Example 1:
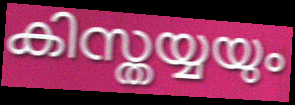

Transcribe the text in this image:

കിസ്തയ്യയും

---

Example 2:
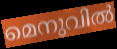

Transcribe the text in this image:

മെനുവിൽ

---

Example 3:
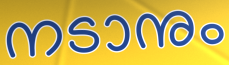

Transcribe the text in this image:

നടാനും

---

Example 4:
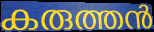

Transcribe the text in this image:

കരുത്തൻ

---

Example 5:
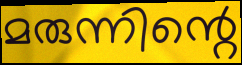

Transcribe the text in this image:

മരുന്നിന്റെ